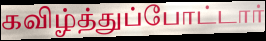
கவிழ்த்துப்போட்டார்